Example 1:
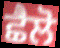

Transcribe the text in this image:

ਛੈਲੋ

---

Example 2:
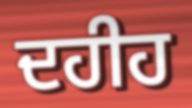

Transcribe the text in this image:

ਦਹੀਹ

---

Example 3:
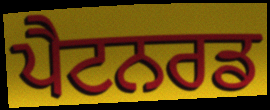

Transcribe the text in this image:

ਪੈਟਨਰਡ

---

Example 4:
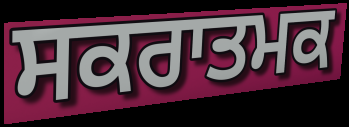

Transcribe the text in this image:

ਸਕਰਾਤਮਕ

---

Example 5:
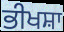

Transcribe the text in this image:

ਭੀਖਸ਼ਾ